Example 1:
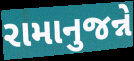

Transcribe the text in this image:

રામાનુજન્ને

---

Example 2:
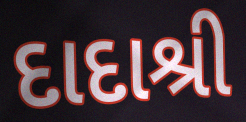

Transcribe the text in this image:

દાદાશ્રી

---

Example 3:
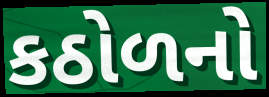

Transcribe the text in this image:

કઠોળનો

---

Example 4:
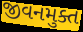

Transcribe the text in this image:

જીવનમુક્ત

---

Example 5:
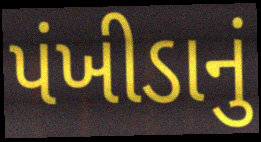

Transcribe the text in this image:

પંખીડાનું